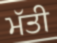
ਮੱਤੀ